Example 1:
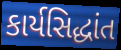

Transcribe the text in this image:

કાર્યસિદ્ધાંત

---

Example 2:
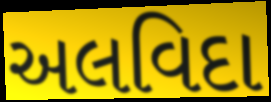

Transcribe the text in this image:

અલવિદા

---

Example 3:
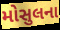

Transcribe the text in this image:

મોસુલના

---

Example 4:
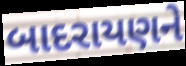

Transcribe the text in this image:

બાદરાયણને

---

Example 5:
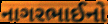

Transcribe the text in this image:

નાગરભાઈનો